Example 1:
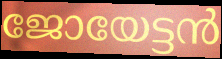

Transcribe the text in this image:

ജോയേട്ടൻ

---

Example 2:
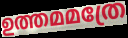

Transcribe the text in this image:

ഉത്തമമത്രേ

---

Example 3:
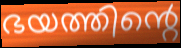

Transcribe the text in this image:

ഭയത്തിന്റെ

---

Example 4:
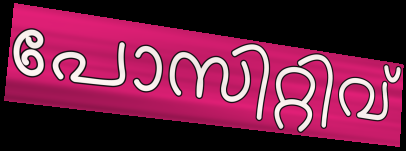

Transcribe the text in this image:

പോസിറ്റിവ്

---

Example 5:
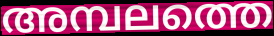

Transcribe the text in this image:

അമ്പലത്തെ